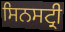
ਸਿਨਸਟ੍ਰੀ